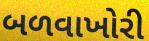
બળવાખોરી